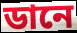
ডানে